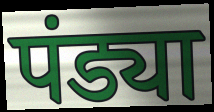
पंड्या